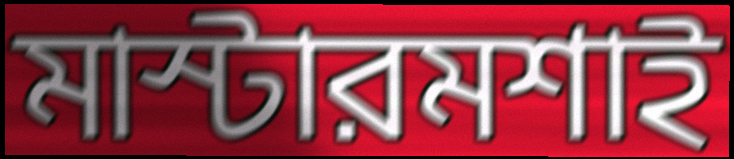
মাস্টারমশাই